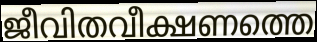
ജീവിതവീക്ഷണത്തെ